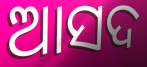
ଆସଦ